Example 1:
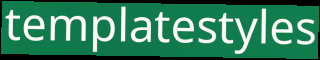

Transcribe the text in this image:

templatestyles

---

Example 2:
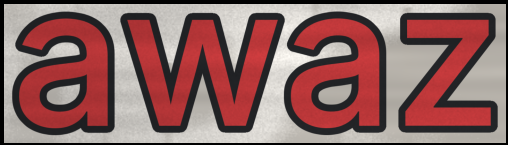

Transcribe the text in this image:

awaz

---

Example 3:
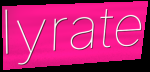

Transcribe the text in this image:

lyrate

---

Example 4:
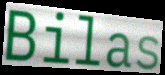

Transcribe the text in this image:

Bilas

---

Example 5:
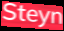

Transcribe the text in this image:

Steyn